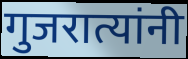
गुजरात्यांनी